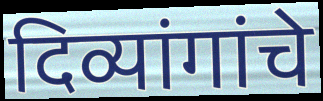
दिव्यांगांचे